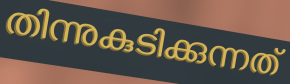
തിന്നുകുടിക്കുന്നത്